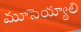
మూసెయ్యాలి